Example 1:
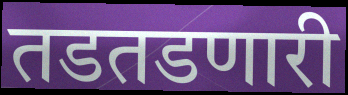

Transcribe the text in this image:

तडतडणारी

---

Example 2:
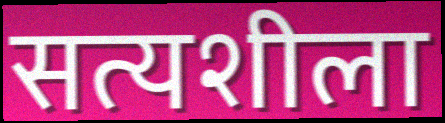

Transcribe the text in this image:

सत्यशीला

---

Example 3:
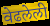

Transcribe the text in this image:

वेढलेली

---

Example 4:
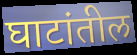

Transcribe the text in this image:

घाटांतील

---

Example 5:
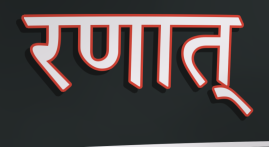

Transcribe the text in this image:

रणात्